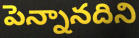
పెన్నానదిని